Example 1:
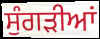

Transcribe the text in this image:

ਸੁੰਗੜੀਆਂ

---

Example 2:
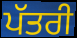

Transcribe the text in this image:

ਪੱਤਰੀ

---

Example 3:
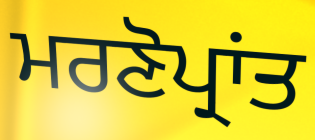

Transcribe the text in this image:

ਮਰਣੋਪ੍ਰਾਂਤ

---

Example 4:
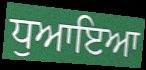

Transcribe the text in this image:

ਧੁਆਇਆ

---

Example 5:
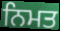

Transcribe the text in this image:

ਨਿਮਤ